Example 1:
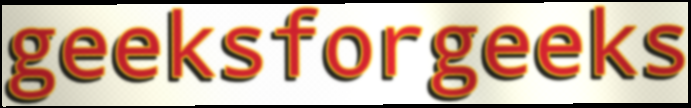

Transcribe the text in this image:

geeksforgeeks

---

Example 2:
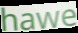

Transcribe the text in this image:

hawe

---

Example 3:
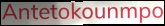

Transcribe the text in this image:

Antetokounmpo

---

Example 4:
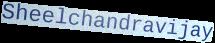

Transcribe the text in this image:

Sheelchandravijay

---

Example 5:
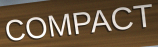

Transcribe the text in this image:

COMPACT